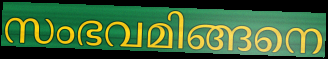
സംഭവമിങ്ങനെ